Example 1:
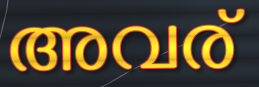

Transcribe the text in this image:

അവര്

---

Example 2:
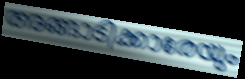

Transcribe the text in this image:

അങ്ങാടിക്കാരേയും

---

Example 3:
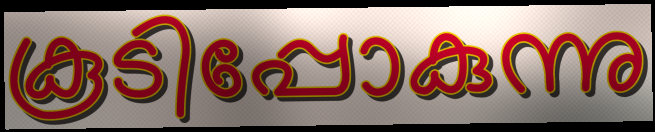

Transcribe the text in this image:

കൂടിപ്പോകുന്നു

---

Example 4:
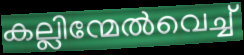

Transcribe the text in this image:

കല്ലിന്മേൽവെച്ച്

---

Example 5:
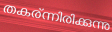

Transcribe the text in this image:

തകര്ന്നിരിക്കുന്നു